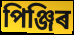
পিঞ্জিৰ